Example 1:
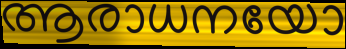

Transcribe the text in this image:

ആരാധനയോ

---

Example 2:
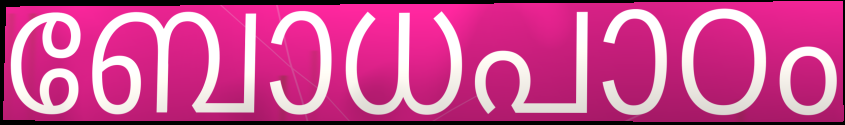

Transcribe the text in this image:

ബോധപാഠം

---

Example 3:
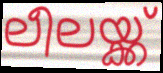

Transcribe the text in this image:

ലീലയ്ക്ക്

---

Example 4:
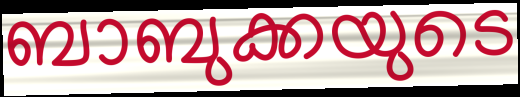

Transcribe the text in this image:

ബാബുക്കയുടെ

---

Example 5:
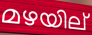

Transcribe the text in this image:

മഴയില്